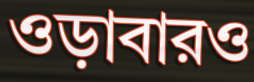
ওড়াবারও